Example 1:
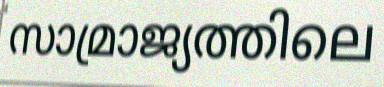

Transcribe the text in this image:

സാമ്രാജ്യത്തിലെ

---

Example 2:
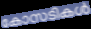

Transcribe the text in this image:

കോസടികൾ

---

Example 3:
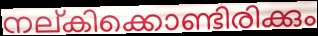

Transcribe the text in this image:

നല്കിക്കൊണ്ടിരിക്കും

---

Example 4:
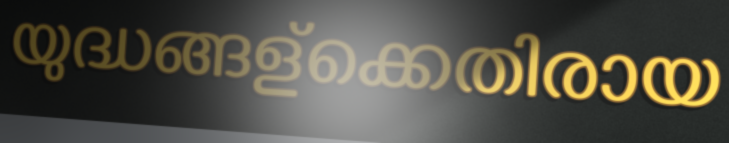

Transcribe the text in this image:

യുദ്ധങ്ങള്ക്കെതിരായ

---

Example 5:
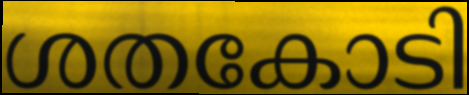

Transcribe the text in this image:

ശതകോടി